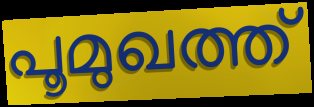
പൂമുഖത്ത്